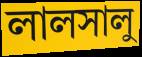
লালসালু